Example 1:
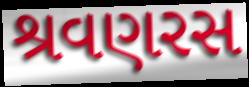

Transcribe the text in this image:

શ્રવણરસ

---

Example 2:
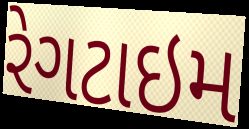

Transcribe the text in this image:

રેગટાઇમ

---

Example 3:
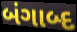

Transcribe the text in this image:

બંગાબ્દ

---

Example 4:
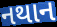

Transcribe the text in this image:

નથાન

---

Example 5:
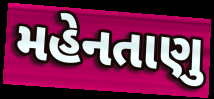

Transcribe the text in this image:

મહેનતાણુ